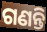
ଗଣନ୍ତି